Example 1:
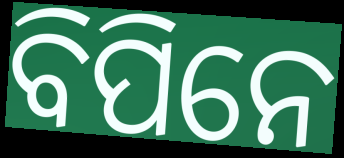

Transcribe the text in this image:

ବିପିନେ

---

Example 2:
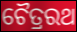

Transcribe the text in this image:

ଚୈତ୍ରରଥ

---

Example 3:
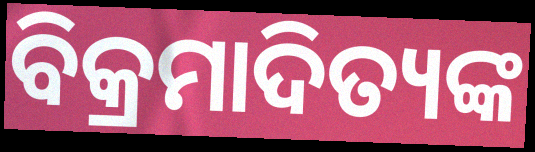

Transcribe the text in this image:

ବିକ୍ରମାଦିତ୍ୟଙ୍କ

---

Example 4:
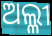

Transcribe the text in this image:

ଅଲ୍ଳୀ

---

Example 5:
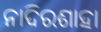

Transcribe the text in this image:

ନାଦିରଶାହା